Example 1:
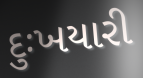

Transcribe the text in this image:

દુઃખયારી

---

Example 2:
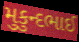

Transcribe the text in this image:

મુકુન્દભાઈ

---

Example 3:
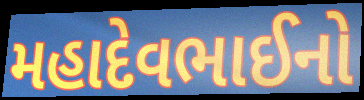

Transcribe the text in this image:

મહાદેવભાઈનો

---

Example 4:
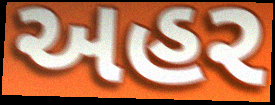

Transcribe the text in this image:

અહર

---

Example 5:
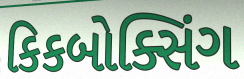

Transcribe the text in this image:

કિકબોક્સિંગ